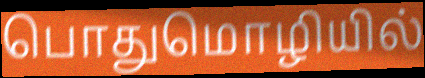
பொதுமொழியில்